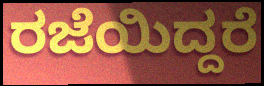
ರಜೆಯಿದ್ದರೆ